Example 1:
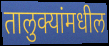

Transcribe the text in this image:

तालुक्यांमधील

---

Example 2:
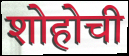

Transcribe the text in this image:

शोहोची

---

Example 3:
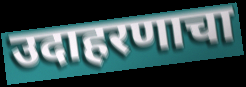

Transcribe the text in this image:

उदाहरणाचा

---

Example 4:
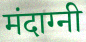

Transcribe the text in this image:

मंदाग्नी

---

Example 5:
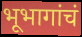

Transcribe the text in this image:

भूभागांचं